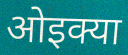
ओइक्या